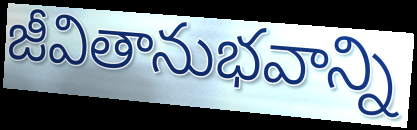
జీవితానుభవాన్ని